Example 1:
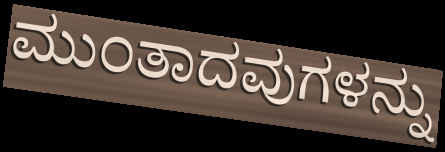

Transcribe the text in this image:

ಮುಂತಾದವುಗಳನ್ನು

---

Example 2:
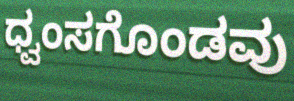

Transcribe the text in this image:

ಧ್ವಂಸಗೊಂಡವು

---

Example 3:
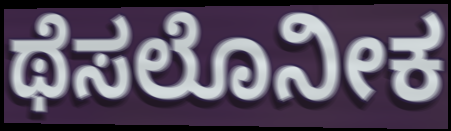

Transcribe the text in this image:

ಥೆಸಲೊನೀಕ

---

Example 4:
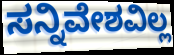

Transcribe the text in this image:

ಸನ್ನಿವೇಶವಿಲ್ಲ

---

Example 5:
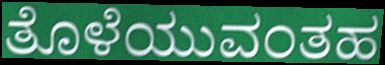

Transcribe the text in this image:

ತೊಳೆಯುವಂತಹ